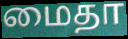
மைதா